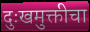
दुःखमुक्तीचा